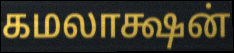
கமலாக்ஷன்